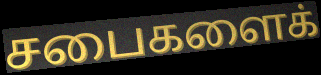
சபைகளைக்